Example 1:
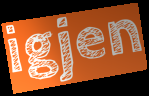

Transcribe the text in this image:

igjen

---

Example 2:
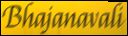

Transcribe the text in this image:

Bhajanavali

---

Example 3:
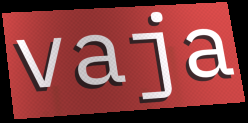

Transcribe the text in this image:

vaja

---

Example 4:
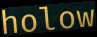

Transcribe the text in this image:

holow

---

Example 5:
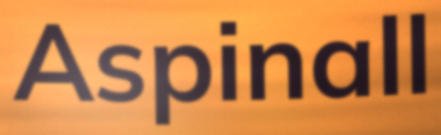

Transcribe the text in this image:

Aspinall